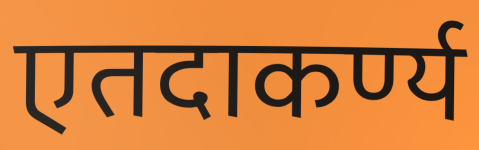
एतदाकर्ण्य